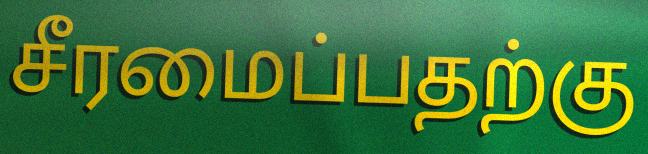
சீரமைப்பதற்கு